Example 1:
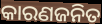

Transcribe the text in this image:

କାରଣଜନିତ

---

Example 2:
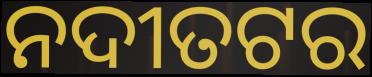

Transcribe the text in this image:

ନଦୀତଟର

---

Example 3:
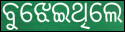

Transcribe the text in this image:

ବୁଝେଇଥିଲେ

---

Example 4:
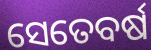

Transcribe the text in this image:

ସେତେବର୍ଷ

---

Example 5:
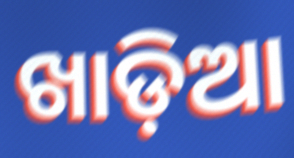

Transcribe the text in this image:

ଖାଡ଼ିଆ